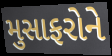
મુસાફરોને